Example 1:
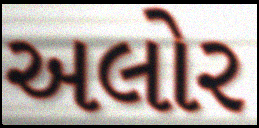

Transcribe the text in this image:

અલોર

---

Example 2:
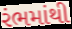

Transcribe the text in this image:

રંભમાંથી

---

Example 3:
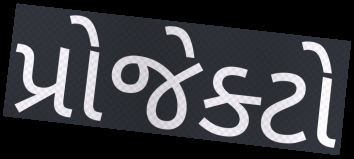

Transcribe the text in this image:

પ્રોજેક્ટો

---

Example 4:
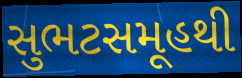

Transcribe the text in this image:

સુભટસમૂહથી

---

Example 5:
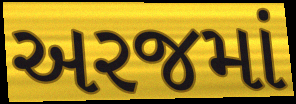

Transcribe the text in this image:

અરજમાં